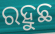
ରହୁଛ